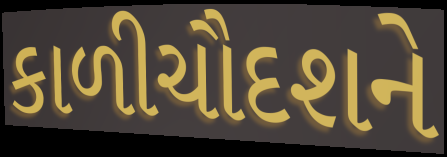
કાળીચૌદશને